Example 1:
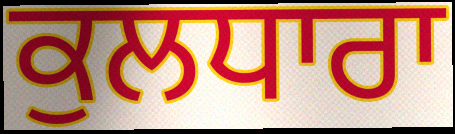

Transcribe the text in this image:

ਕੁਲਧਾਰਾ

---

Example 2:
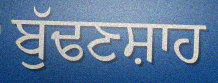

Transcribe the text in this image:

ਬੁੱਢਣਸ਼ਾਹ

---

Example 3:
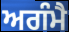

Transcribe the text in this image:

ਅਗੰਮੈ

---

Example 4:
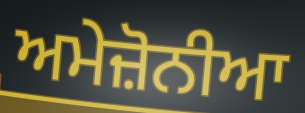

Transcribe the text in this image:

ਅਮੇਜ਼ੋਨੀਆ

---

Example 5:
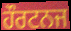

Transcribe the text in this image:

ਹੌਰਟਨਜ